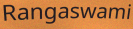
Rangaswami